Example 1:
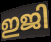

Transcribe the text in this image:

ഇജി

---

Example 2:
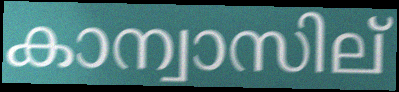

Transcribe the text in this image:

കാന്വാസില്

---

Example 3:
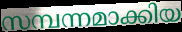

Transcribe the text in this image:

സമ്പന്നമാക്കിയ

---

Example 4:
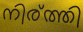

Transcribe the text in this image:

നിര്ത്തി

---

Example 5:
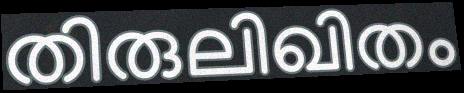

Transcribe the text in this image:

തിരുലിഖിതം